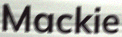
Mackie